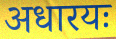
अधारयः